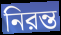
নিরন্ত